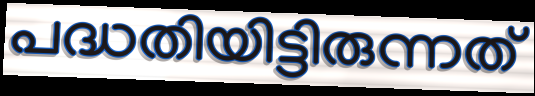
പദ്ധതിയിട്ടിരുന്നത്